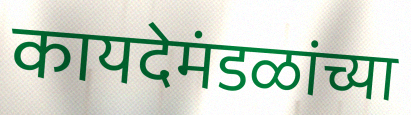
कायदेमंडळांच्या